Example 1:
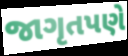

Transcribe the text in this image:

જાગૃતપણે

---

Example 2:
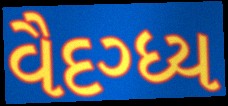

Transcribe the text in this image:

વૈદગ્ધ્ય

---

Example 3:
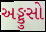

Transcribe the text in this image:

અઙ્કુસો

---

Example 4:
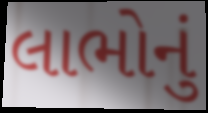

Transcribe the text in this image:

લાભોનું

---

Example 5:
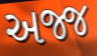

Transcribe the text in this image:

અજ્જ